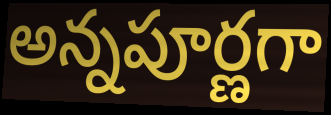
అన్నపూర్ణగా